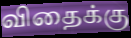
விதைக்கு